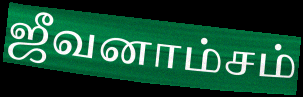
ஜீவனாம்சம்